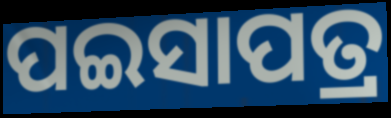
ପଇସାପତ୍ର